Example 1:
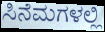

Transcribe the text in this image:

ಸಿನೆಮಗಳಲ್ಲಿ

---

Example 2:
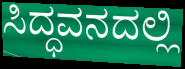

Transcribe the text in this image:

ಸಿದ್ಧವನದಲ್ಲಿ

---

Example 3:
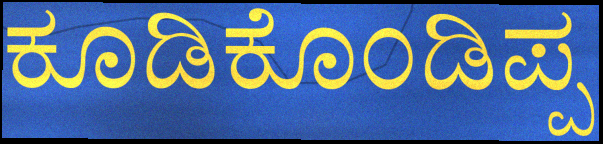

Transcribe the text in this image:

ಕೂಡಿಕೊಂಡಿಪ್ಪ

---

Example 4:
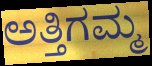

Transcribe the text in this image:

ಅತ್ತಿಗಮ್ಮ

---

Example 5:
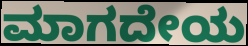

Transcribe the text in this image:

ಮಾಗದೇಯ